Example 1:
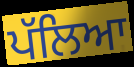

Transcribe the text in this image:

ਪੱਲਿਆ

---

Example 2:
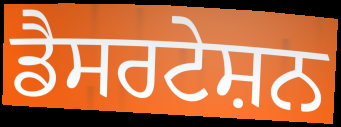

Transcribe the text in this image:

ਡੈਸਰਟੇਸ਼ਨ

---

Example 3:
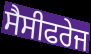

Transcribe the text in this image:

ਸੈਸੀਫਰੇਜ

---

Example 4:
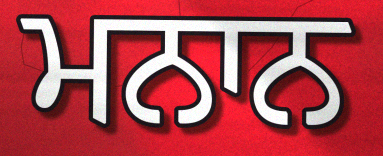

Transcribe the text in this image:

ਮਨਾਨ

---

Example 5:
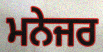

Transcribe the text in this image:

ਮਨੇਜਰ